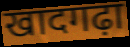
खादगढ़ा